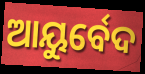
ଆୟୁର୍ବେଦ